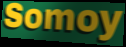
Somoy